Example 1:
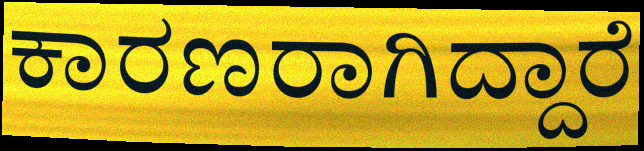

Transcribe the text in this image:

ಕಾರಣರಾಗಿದ್ದಾರೆ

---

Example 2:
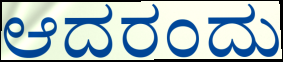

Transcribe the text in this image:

ಆದರಂದು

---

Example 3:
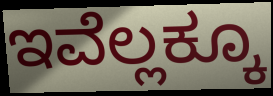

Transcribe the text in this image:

ಇವೆಲ್ಲಕ್ಕೂ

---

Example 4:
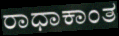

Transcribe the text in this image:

ರಾಧಾಕಾಂತ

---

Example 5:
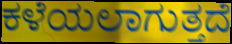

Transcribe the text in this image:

ಕಳೆಯಲಾಗುತ್ತದೆ